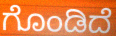
ಗೊಂಡಿದೆ